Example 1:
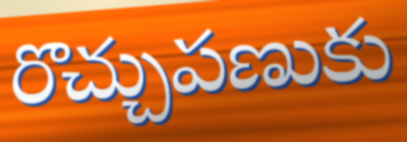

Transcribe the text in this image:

రొచ్చుపణుకు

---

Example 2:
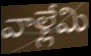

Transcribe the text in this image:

వాళ్లేమి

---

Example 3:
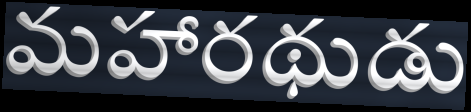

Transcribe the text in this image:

మహారథుడు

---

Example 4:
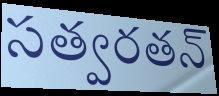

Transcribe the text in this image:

సత్వరతన్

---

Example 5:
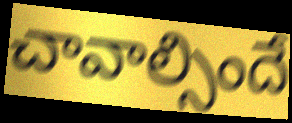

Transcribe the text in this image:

చావాల్సిందే